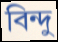
বিন্দু